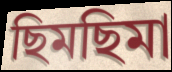
ছিমছিমা